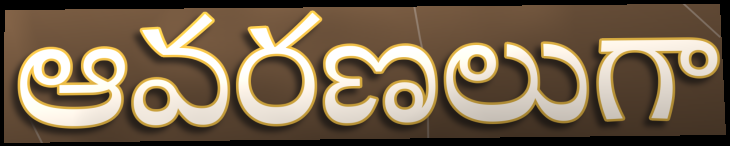
ఆవరణలుగా